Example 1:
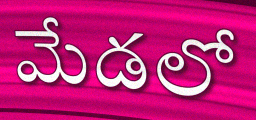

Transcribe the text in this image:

మేడలో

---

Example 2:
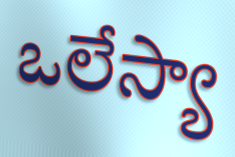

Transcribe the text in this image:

ఒలేస్యా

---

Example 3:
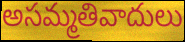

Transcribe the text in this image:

అసమ్మతివాదులు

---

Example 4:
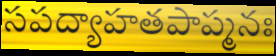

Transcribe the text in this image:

సపద్యాహతపాప్మనః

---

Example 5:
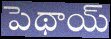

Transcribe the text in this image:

పెథాయ్